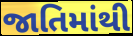
જાતિમાંથી